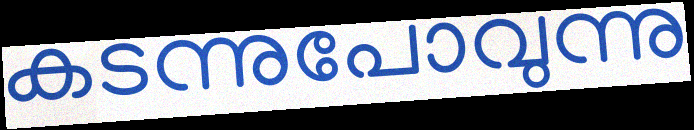
കടന്നുപോവുന്നു